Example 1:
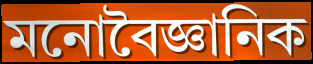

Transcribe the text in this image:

মনোবৈজ্ঞানিক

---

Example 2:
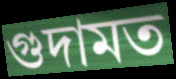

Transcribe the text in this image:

গুদামত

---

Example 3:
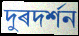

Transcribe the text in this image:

দুৰদৰ্শন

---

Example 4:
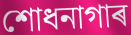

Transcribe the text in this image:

শোধনাগাৰ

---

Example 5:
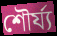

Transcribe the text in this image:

শৌৰ্য্য